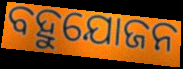
ବହୁଯୋଜନ